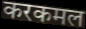
करकमल